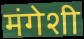
मंगेशी